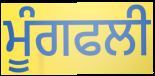
ਮੂੰਗਫਲੀ